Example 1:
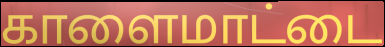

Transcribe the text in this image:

காளைமாட்டை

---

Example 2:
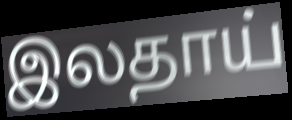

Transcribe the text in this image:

இலதாய்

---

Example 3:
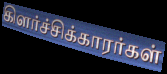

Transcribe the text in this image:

கிளர்ச்சிக்காரர்கள்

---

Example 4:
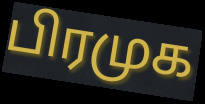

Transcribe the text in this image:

பிரமுக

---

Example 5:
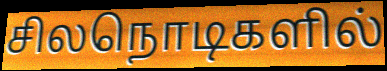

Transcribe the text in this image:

சிலநொடிகளில்